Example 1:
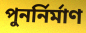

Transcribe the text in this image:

পুনর্নির্মাণ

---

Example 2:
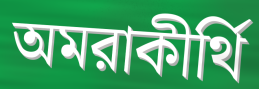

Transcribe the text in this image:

অমরাকীর্থি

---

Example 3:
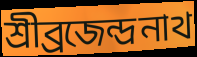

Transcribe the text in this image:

শ্রীব্রজেন্দ্রনাথ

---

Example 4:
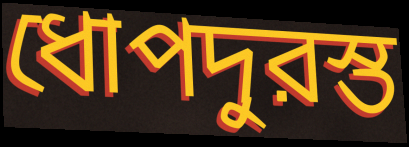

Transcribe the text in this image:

ধোপদুরস্ত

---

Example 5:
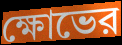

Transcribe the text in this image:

ক্ষোভের